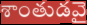
శాంతుడవై